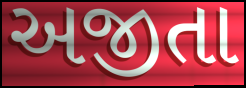
અજીતા